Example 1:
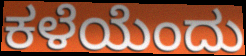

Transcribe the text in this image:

ಕಳೆಯೆಂದು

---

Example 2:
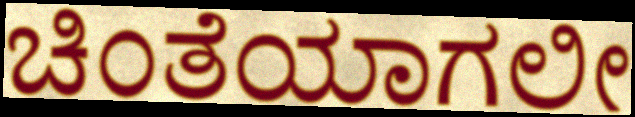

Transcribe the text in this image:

ಚಿಂತೆಯಾಗಲೀ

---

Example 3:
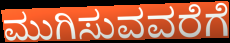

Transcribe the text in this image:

ಮುಗಿಸುವವರೆಗೆ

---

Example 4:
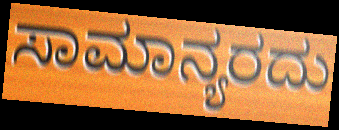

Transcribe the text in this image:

ಸಾಮಾನ್ಯರದು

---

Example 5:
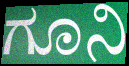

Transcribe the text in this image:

ಗೂನಿ